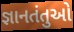
જ્ઞાનતંતુઓ